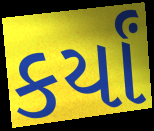
કર્યાં